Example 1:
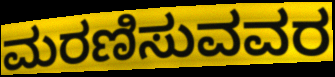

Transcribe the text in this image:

ಮರಣಿಸುವವರ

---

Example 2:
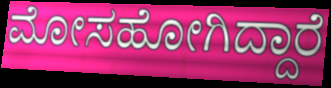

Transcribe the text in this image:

ಮೋಸಹೋಗಿದ್ದಾರೆ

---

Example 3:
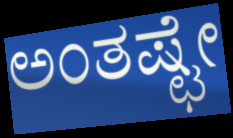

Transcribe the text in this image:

ಅಂತಷ್ಟೇ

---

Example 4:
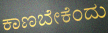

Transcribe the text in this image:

ಕಾಣಬೇಕೆಂದು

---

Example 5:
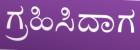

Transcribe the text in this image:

ಗ್ರಹಿಸಿದಾಗ